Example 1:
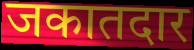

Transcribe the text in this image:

जकातदार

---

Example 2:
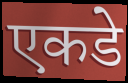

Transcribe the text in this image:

एकडे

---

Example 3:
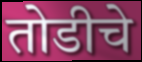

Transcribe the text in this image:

तोडीचे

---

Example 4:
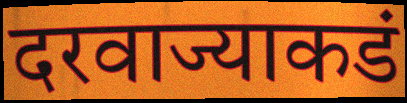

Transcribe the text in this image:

दरवाज्याकडं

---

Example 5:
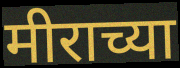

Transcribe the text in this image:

मीराच्या